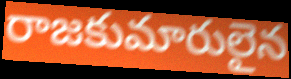
రాజకుమారులైన